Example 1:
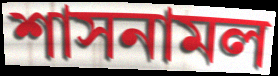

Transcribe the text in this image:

শাসনামল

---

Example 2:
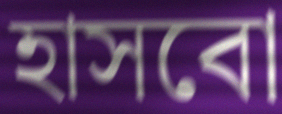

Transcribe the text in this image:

হাসবো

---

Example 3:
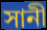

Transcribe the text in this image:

সানী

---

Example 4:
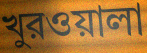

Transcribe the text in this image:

খুরওয়ালা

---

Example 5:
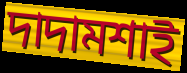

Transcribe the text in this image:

দাদামশাই